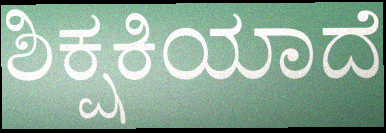
ಶಿಕ್ಷಕಿಯಾದೆ